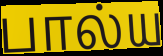
பால்ய